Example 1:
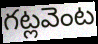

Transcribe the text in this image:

గట్లవెంట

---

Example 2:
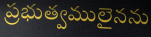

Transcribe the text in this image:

ప్రభుత్వములైనను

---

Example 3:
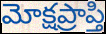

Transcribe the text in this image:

మోక్షప్రాప్తి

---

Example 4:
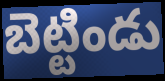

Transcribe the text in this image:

బెట్టిండు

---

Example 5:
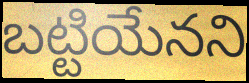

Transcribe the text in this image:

బట్టియేనని